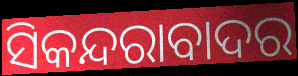
ସିକନ୍ଦରାବାଦର